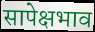
सापेक्षभाव